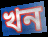
খন